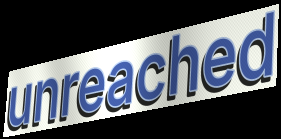
unreached